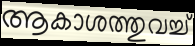
ആകാശത്തുവച്ച്